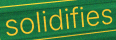
solidifies